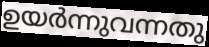
ഉയർന്നുവന്നതു